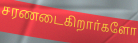
சரணடைகிறார்களோ